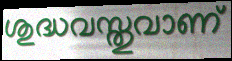
ശുദ്ധവസ്തുവാണ്